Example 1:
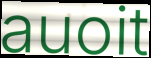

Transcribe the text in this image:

auoit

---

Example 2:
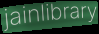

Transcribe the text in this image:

jainlibrary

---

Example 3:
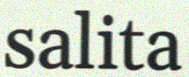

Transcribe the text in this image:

salita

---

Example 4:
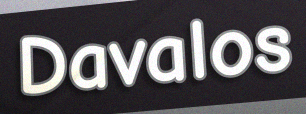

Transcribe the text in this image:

Davalos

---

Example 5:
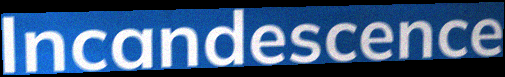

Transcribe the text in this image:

Incandescence